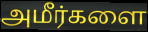
அமீர்களை